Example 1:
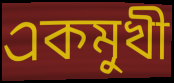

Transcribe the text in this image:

একমুখী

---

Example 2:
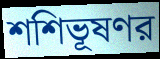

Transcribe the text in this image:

শশিভূষণর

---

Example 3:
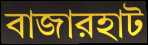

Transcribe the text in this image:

বাজারহাট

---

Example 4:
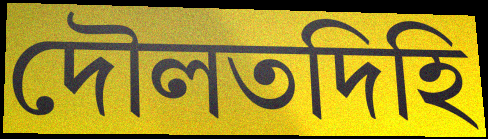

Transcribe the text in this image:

দৌলতদিহি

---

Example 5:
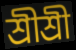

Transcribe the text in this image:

শ্রীশ্রী